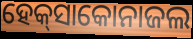
ହେକ୍‌ସାକୋନାଜଲ